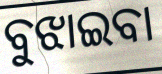
ବୁଝାଇବା